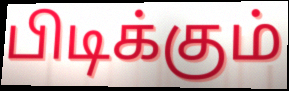
பிடிக்கும்